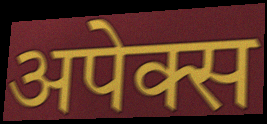
अपेक्स